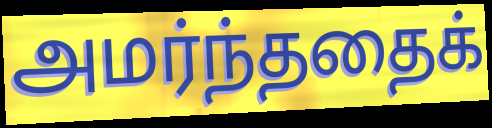
அமர்ந்ததைக்